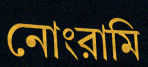
নোংরামি